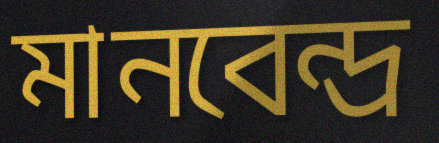
মানবেন্দ্র